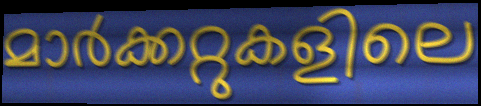
മാർക്കറ്റുകളിലെ